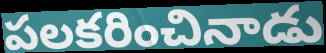
పలకరించినాడు